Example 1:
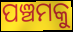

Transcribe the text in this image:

ପଞ୍ଚମକୁ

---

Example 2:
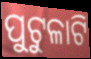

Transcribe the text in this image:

ପୁଟୁଳାଟି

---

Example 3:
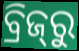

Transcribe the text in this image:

ବ୍ରିଜ୍‌ରୁ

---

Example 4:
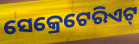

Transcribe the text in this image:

ସେକ୍ରେଟେରିଏଟ୍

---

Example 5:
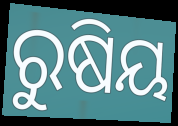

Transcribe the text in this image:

ରୁଷିୟ